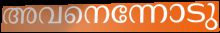
അവനെന്നോടു